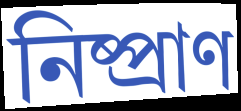
নিষ্প্রাণ